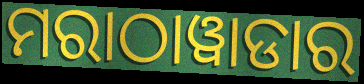
ମରାଠାୱାଡାର